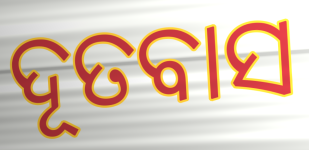
ଦୂତବାସ